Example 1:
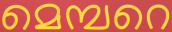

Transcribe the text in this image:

മെമ്പറെ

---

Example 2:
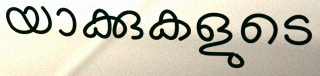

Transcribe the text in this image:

യാക്കുകളുടെ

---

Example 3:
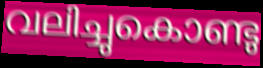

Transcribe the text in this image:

വലിച്ചുകൊണ്ടു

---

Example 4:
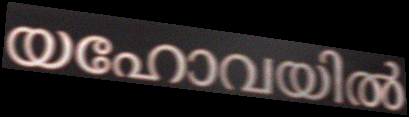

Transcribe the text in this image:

യഹോവയിൽ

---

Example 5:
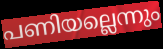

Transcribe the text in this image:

പണിയല്ലെന്നും